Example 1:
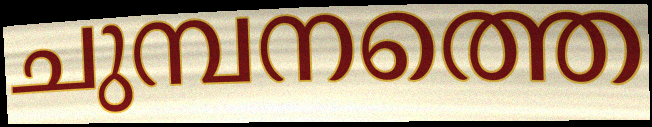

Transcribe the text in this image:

ചുമ്പനത്തെ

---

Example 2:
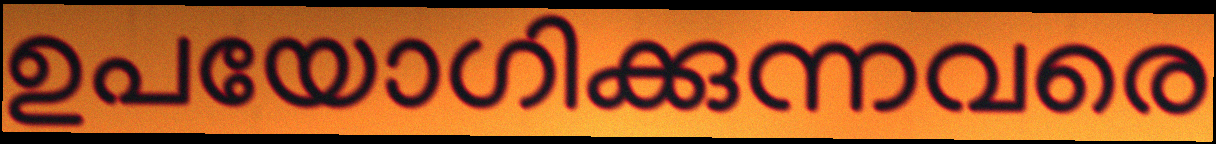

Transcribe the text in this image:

ഉപയോഗിക്കുന്നവരെ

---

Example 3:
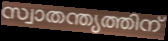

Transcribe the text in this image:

സ്വാതന്ത്യത്തിന്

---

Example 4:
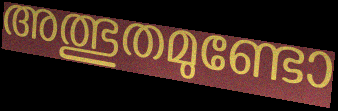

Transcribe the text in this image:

അത്ഭുതമുണ്ടോ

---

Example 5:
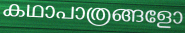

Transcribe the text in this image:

കഥാപാത്രങ്ങളോ